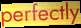
perfectly